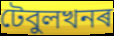
টেবুলখনৰ